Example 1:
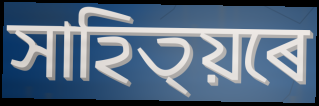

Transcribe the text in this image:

সাহিত্য়ৰে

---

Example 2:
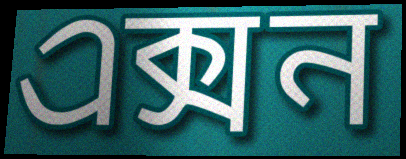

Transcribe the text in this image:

এক্সন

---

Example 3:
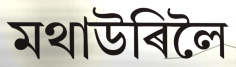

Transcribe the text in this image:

মথাউৰিলৈ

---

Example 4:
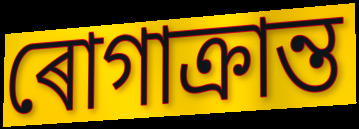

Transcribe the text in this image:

ৰোগাক্ৰান্ত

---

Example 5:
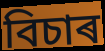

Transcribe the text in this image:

বিচাৰ